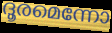
ദൂരമെന്നോ